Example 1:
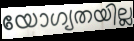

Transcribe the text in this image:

യോഗ്യതയില്ല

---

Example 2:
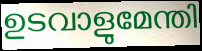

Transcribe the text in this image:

ഉടവാളുമേന്തി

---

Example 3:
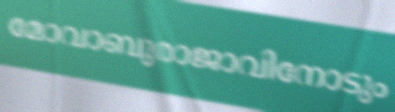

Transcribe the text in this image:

മോവാബുരാജാവിനോടും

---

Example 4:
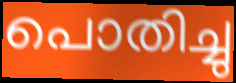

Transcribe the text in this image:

പൊതിച്ചു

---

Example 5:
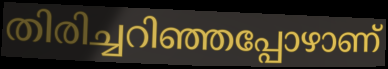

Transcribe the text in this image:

തിരിച്ചറിഞ്ഞപ്പോഴാണ്